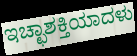
ಇಚ್ಛಾಶಕ್ತಿಯಾದಳು